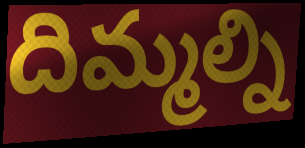
దిమ్మల్ని